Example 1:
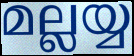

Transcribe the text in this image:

മല്ലയ്യ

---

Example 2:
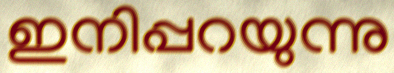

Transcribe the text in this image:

ഇനിപ്പറയുന്നു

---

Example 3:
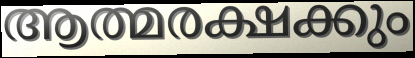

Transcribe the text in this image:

ആത്മരക്ഷക്കും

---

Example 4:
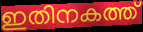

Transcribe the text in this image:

ഇതിനകത്ത്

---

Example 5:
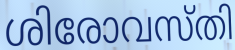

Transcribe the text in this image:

ശിരോവസ്തി